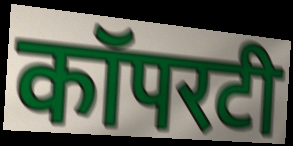
कॉपरटी